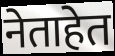
नेताहेत